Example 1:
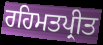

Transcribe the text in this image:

ਰਹਿਮਤਪ੍ਰੀਤ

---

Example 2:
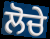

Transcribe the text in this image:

ਲੋਚੇ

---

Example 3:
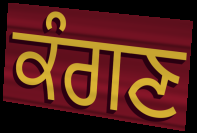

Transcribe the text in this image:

ਕੰਗਣ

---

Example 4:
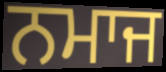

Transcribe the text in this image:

ਨਮਾਜ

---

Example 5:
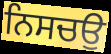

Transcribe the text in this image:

ਨਿਸਚਉ